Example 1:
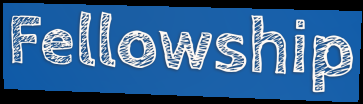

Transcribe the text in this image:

Fellowship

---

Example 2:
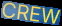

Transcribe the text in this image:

CREW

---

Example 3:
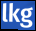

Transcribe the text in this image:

lkg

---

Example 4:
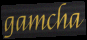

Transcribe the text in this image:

gamcha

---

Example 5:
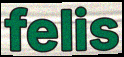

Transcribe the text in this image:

felis